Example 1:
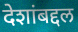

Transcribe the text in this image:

देशांबद्दल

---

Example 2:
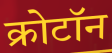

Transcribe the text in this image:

क्रोटॉन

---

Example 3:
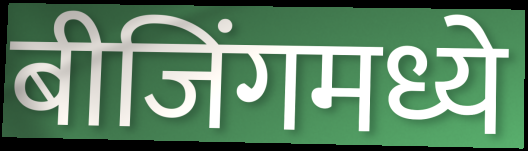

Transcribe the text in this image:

बीजिंगमध्ये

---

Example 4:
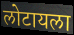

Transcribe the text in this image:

लोटायला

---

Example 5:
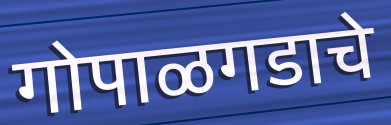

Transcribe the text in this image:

गोपाळगडाचे